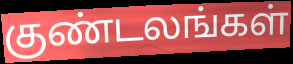
குண்டலங்கள்